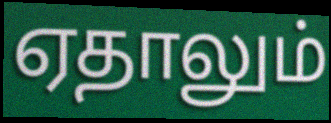
ஏதாலும்